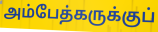
அம்பேத்கருக்குப்